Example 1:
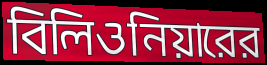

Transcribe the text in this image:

বিলিওনিয়ারের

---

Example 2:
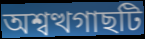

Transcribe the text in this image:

অশ্বত্থগাছটি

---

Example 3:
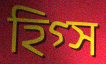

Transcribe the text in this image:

হিগ্স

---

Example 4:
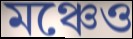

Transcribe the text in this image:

মঞ্চেও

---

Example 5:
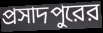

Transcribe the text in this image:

প্রসাদপুরের